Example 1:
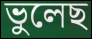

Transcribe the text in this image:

ভুলেছ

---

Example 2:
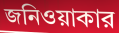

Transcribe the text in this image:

জনিওয়াকার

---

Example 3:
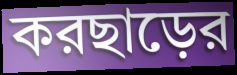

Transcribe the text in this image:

করছাড়ের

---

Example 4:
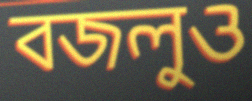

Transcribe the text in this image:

বজলুও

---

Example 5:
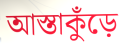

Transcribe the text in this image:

আস্তাকুঁড়ে